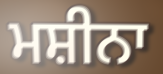
ਮਸ਼ੀਨਾ